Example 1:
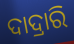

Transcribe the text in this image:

ଦାଦ୍ରାରି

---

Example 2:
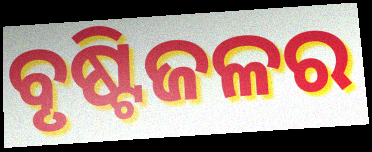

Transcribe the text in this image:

ବୃଷ୍ଟିଜଳର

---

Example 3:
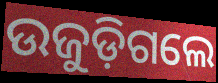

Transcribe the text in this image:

ଉଜୁଡ଼ିଗଲେ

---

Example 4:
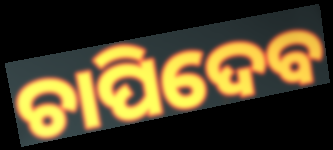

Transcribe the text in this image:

ଚାପିଦେବ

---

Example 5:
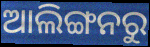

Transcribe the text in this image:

ଆଲିଙ୍ଗନରୁ